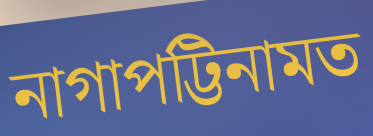
নাগাপট্টিনামত